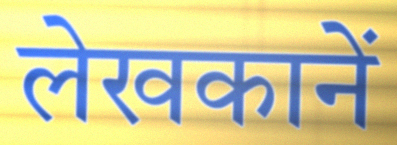
लेखकानें